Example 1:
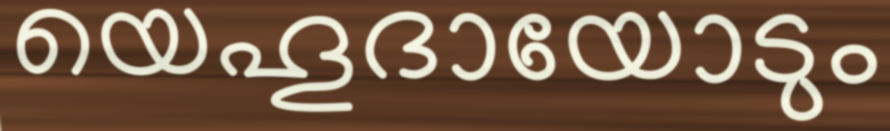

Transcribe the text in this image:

യെഹൂദായോടും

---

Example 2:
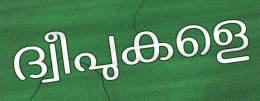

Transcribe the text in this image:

ദ്വീപുകളെ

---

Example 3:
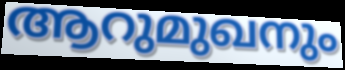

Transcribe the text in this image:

ആറുമുഖനും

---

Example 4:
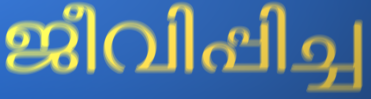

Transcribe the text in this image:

ജീവിപ്പിച്ച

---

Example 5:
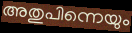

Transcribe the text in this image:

അതുപിന്നെയും